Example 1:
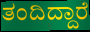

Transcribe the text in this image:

ತಂದಿದ್ದಾರೆ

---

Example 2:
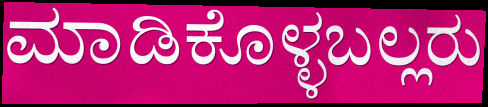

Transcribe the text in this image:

ಮಾಡಿಕೊಳ್ಳಬಲ್ಲರು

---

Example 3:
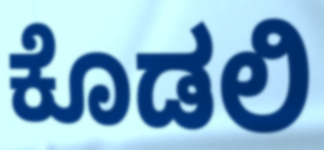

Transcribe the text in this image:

ಕೊಡಲಿ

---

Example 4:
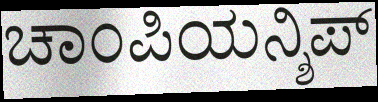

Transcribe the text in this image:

ಚಾಂಪಿಯನ್ಶಿಪ್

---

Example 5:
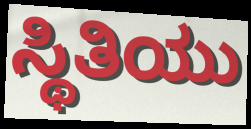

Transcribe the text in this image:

ಸ್ಥಿತಿಯು